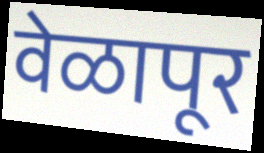
वेळापूर